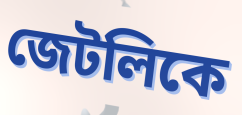
জেটলিকে